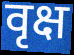
वृक्ष